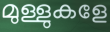
മുള്ളുകളേ